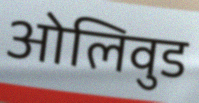
ओलिवुड